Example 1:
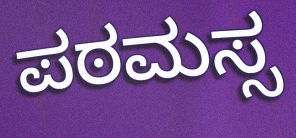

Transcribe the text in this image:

ಪಠಮಸ್ಸ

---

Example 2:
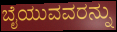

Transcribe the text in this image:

ಬೈಯುವವರನ್ನು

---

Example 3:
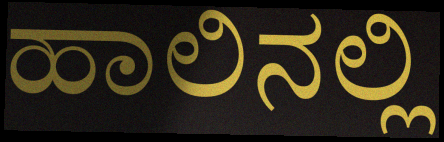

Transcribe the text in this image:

ಹಾಲಿನಲ್ಲಿ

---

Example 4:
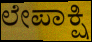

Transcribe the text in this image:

ಲೇಪಾಕ್ಷಿ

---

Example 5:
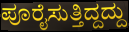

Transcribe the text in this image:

ಪೂರೈಸುತ್ತಿದ್ದದ್ದು